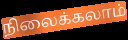
நிலைக்கலாம்